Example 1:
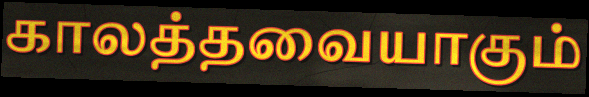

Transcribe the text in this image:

காலத்தவையாகும்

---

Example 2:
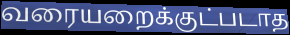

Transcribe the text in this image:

வரையறைக்குட்படாத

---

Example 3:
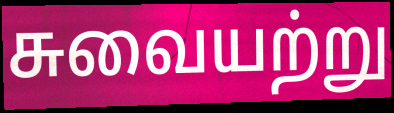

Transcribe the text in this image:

சுவையற்று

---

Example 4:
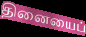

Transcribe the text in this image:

தினையைப்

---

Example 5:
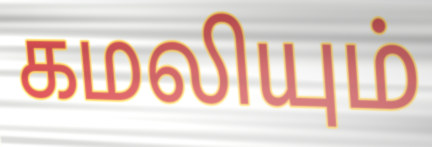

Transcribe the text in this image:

கமலியும்